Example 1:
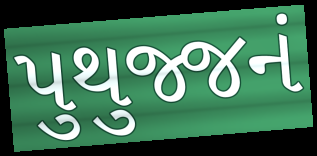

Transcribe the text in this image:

પુથુજ્જનં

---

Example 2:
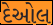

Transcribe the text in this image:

દેઓલ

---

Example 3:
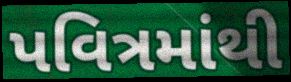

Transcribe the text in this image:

પવિત્રમાંથી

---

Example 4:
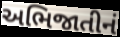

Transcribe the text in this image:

અભિજાતીનં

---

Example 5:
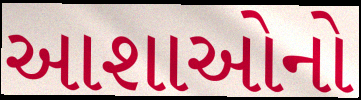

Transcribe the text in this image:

આશાઓનો